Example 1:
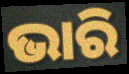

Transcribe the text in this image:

ଭାରି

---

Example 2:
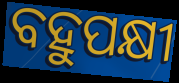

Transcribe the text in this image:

ବହୁପକ୍ଷୀ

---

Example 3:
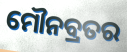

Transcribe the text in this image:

ମୌନବ୍ରତର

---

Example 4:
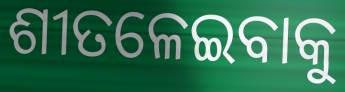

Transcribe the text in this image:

ଶୀତଳେଇବାକୁ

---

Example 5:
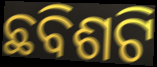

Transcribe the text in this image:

ଛବିଶଟି